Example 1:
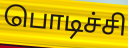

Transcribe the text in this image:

பொடிச்சி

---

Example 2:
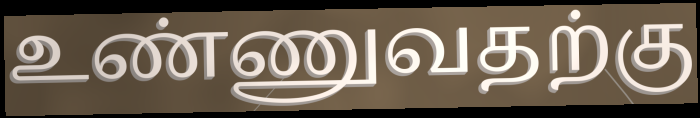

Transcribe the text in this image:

உண்ணுவதற்கு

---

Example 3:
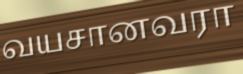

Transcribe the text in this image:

வயசானவரா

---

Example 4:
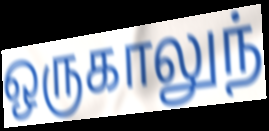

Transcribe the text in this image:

ஒருகாலுந்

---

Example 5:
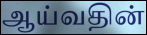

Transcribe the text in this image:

ஆய்வதின்